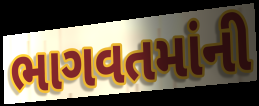
ભાગવતમાંની